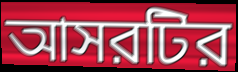
আসরটির